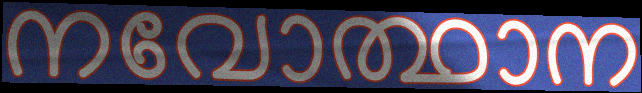
നവോത്ഥാന